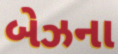
બેઝના